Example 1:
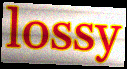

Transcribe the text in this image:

lossy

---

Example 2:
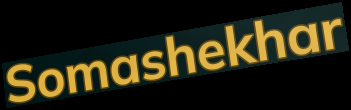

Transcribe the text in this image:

Somashekhar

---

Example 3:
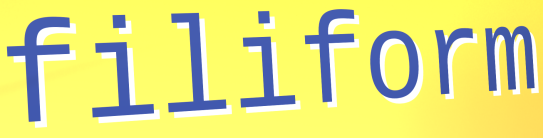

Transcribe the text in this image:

filiform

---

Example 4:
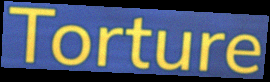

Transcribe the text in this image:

Torture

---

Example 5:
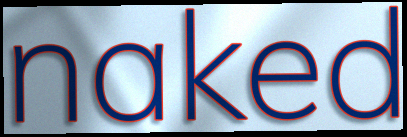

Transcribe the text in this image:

naked